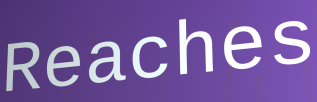
Reaches